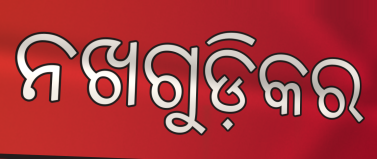
ନଖଗୁଡ଼ିକର